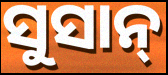
ସୁସାନ୍